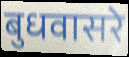
बुधवासरे